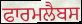
ਫਾਰਮਲੈਬਸ